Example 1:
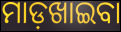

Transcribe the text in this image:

ମାଡ଼ଖାଇବା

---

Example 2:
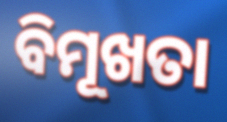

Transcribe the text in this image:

ବିମୂଖତା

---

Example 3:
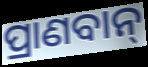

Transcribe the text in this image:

ପ୍ରାଣବାନ୍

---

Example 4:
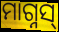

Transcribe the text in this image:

ମାଗ୍ନସ୍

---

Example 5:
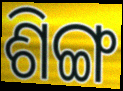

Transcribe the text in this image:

ଶିଙ୍ଗ